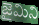
జైమిని